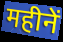
महीनें